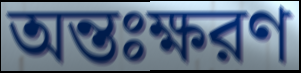
অন্তঃক্ষরণ